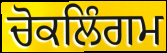
ਚੋਕਲਿੰਗਮ